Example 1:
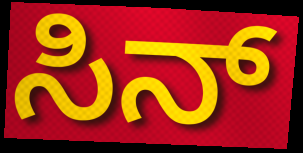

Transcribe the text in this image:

ಸಿನ್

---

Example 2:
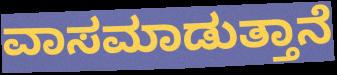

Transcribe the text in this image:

ವಾಸಮಾಡುತ್ತಾನೆ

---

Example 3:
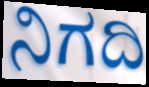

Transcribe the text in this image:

ನಿಗದಿ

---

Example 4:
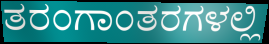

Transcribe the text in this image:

ತರಂಗಾಂತರಗಳಲ್ಲಿ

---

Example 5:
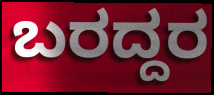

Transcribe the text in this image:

ಬರದ್ದರ